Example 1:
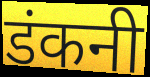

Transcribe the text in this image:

डंकनी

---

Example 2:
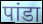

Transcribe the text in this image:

पांडा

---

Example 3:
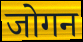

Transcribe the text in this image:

जोगन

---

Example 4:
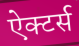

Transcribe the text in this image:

ऐक्टर्स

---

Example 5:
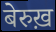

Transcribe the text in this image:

बेरुख़